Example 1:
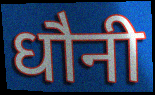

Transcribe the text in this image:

धौनी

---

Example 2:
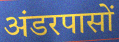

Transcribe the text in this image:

अंडरपासों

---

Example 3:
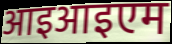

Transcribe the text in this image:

आइआइएम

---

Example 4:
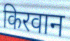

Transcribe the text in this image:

किरवान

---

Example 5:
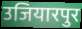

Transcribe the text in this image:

उजियारपुर